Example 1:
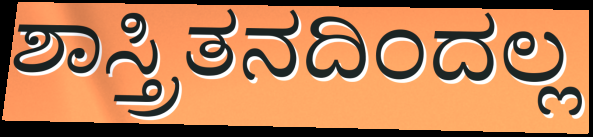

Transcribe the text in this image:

ಶಾಸ್ತ್ರಿತನದಿಂದಲ್ಲ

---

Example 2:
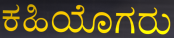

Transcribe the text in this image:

ಕಹಿಯೊಗರು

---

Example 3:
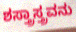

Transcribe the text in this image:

ಶಸ್ತ್ರಾಸ್ತ್ರವನು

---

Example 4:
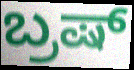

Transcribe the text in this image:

ಬ್ರಷ್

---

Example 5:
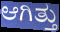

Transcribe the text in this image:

ಆಗಿತ್ತು